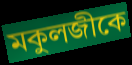
মকুলজীকে